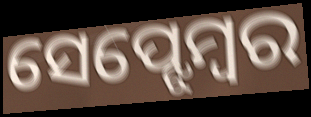
ସେପ୍ଝେମ୍ବର